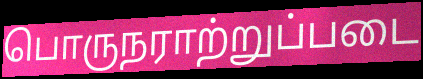
பொருநராற்றுப்படை